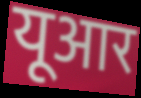
यूआर